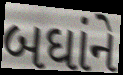
બઘાંને